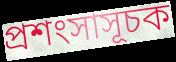
প্রশংসাসূচক